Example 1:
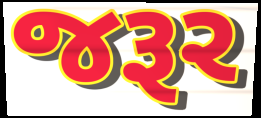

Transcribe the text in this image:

જરૂર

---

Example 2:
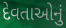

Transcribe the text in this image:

દેવતાઓનું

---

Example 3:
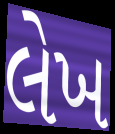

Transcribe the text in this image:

લેખ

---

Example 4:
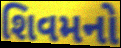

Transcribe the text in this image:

શિવમનો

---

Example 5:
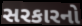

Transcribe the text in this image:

સરકારનો